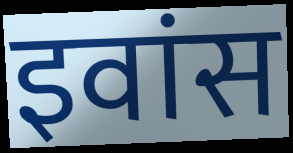
इवांस